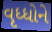
વૃધ્ધોને